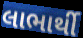
લાભાર્થી